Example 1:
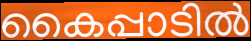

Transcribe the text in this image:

കൈപ്പാടിൽ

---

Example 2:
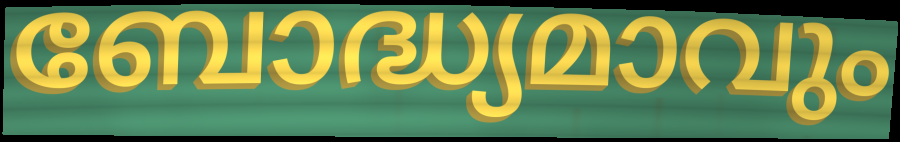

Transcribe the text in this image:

ബോദ്ധ്യമാവും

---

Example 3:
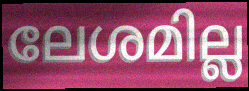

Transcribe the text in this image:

ലേശമില്ല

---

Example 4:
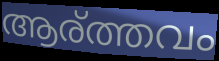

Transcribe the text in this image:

ആര്ത്തവം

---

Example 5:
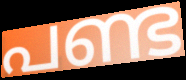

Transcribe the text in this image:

പണ്ട